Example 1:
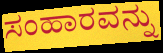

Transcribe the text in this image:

ಸಂಹಾರವನ್ನು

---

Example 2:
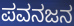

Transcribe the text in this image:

ಪವನಜನ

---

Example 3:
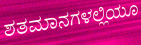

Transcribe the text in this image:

ಶತಮಾನಗಳಲ್ಲಿಯೂ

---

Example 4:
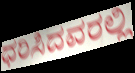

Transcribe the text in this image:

ಧರಿಸಿದವರಲ್ಲಿ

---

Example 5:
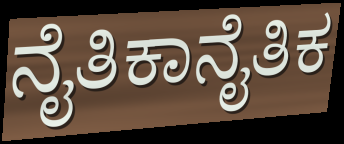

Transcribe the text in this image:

ನೈತಿಕಾನೈತಿಕ